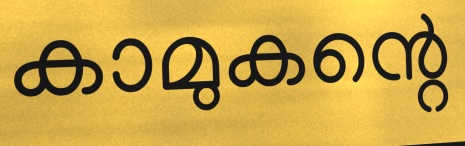
കാമുകന്റെ